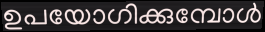
ഉപയോഗിക്കുമ്പോൾ